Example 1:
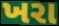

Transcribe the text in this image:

ખરા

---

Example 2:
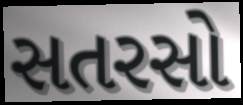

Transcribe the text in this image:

સતરસો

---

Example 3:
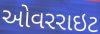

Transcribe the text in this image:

ઓવરરાઇટ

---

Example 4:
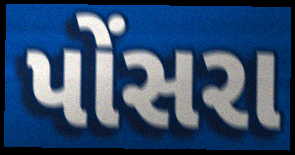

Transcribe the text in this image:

પોંસરા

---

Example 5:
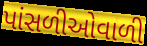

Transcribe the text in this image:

પાંસળીઓવાળી